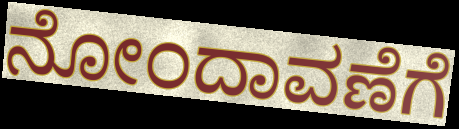
ನೋಂದಾವಣೆಗೆ